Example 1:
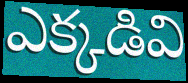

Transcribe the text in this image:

ఎక్కడివి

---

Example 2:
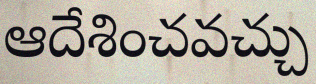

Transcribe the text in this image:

ఆదేశించవచ్చు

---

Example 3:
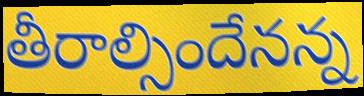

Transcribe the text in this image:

తీరాల్సిందేనన్న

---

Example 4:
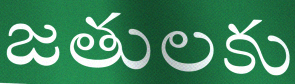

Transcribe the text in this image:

జతులకు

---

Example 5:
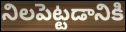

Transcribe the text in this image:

నిలపెట్టడానికి